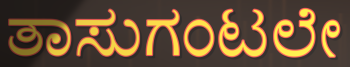
ತಾಸುಗಂಟಲೇ